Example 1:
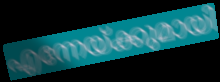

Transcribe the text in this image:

എന്നേയ്ക്കുമായി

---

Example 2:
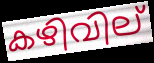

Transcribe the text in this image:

കഴിവില്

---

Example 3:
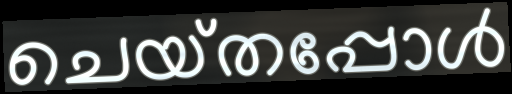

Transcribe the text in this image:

ചെയ്‌തപ്പോൾ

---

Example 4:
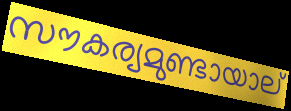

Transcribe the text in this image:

സൗകര്യമുണ്ടായാല്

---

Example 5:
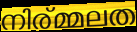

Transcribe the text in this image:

നിര്മ്മലത